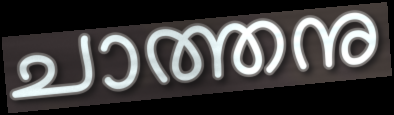
ചാത്തനു